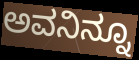
ಅವನಿನ್ನೂ